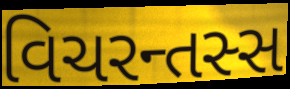
વિચરન્તસ્સ